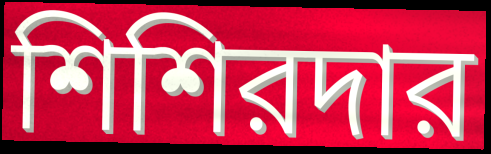
শিশিরদার